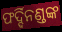
ଫର୍ଦ୍ଦିନଣ୍ଡଙ୍କ